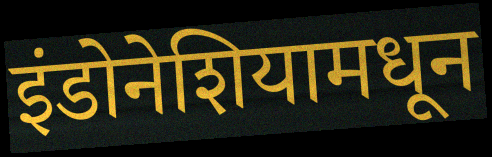
इंडोनेशियामधून